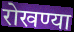
रोखण्या